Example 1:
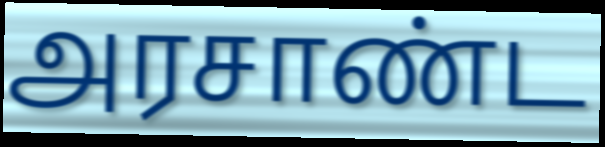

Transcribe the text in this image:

அரசாண்ட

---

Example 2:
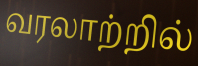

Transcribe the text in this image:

வரலாற்றில்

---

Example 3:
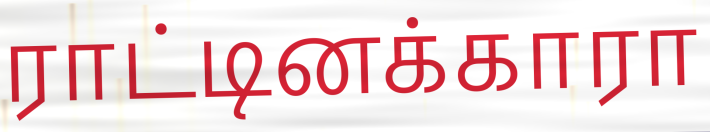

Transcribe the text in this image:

ராட்டினக்காரா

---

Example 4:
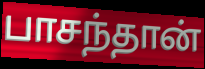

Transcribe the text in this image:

பாசந்தான்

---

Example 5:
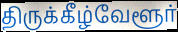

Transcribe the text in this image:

திருக்கீழ்வேளூர்